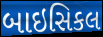
બાઇસિકલ